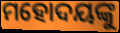
ମହୋଦୟଙ୍କୁ